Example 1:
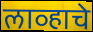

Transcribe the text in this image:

लाव्हाचे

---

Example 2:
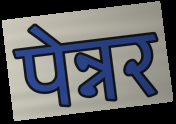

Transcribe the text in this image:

पेन्नर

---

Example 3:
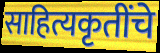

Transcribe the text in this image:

साहित्यकृतींचे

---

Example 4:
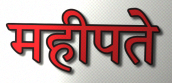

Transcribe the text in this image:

महीपते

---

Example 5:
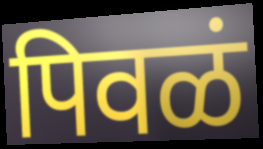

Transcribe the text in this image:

पिवळं